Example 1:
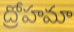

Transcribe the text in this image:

ద్రోహమా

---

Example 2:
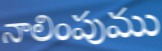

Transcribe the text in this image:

నాలింపుము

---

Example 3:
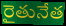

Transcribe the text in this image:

రైతునేత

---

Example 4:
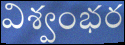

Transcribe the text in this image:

విశ్వంభర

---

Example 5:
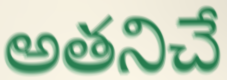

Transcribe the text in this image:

అతనిచే